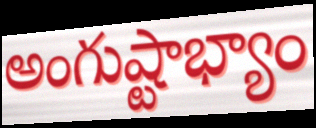
అంగుష్టాభ్యాం